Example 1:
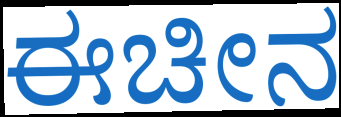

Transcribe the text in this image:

ಈಚೀನ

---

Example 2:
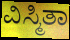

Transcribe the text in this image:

ವಿಸ್ಮಿತಾ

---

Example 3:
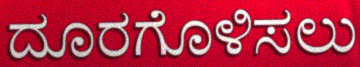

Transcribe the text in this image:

ದೂರಗೊಳಿಸಲು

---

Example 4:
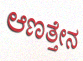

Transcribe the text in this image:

ಆಣತ್ತೇನ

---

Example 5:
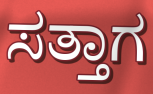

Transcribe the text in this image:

ಸತ್ತಾಗ